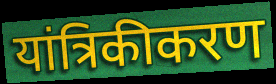
यांत्रिकीकरण